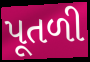
પૂતળી